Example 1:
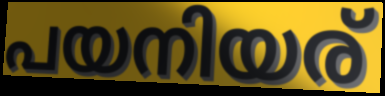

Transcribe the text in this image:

പയനിയര്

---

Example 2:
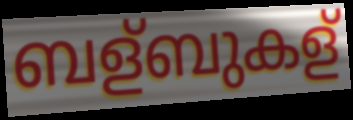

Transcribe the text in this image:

ബള്ബുകള്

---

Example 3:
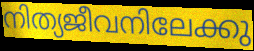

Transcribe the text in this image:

നിത്യജീവനിലേക്കു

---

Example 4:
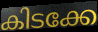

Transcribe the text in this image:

കിടക്കേ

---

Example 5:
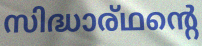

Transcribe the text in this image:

സിദ്ധാര്ഥന്റെ